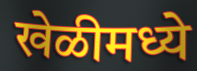
खेळीमध्ये